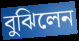
বুঝিলেন